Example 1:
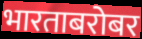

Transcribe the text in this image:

भारताबरोबर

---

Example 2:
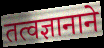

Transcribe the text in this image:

तत्वज्ञानाने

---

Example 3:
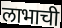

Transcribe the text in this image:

लाभाची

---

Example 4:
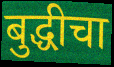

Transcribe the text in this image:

बुद्धीचा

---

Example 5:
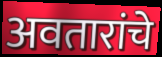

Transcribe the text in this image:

अवतारांचे